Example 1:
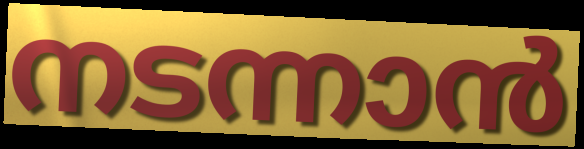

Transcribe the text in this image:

നടന്നാൻ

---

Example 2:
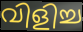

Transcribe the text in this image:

വിളിച്ച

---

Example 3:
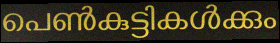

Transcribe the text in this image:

പെൺകുട്ടികൾക്കും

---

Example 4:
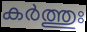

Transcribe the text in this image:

കർത്തുഃ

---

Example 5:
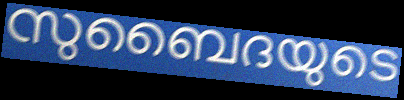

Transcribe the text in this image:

സുബൈദയുടെ